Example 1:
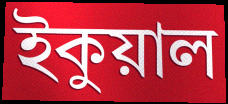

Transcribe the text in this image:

ইকুয়াল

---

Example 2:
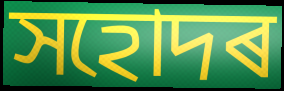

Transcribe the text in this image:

সহোদৰ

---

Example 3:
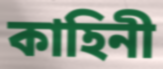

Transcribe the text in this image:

কাহিনী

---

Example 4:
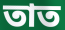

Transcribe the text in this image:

তাত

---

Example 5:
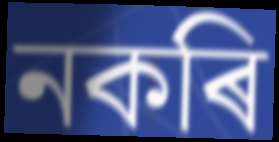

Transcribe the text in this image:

নকৰি